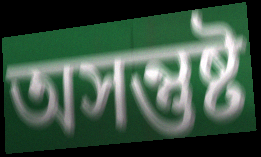
অসন্তুষ্ট